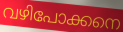
വഴിപോക്കനെ